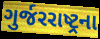
ગુર્જરરાષ્ટ્રના